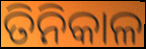
ତିନିକାଳ